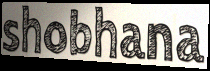
shobhana